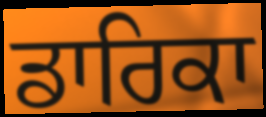
ਡਾਰਿਕਾ